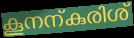
കൂനന്കുരിശ്